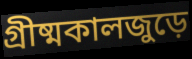
গ্রীষ্মকালজুড়ে